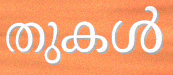
തുകൾ